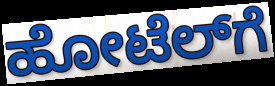
ಹೋಟೆಲ್‌ಗೆ